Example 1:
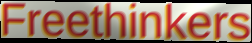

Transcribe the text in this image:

Freethinkers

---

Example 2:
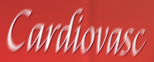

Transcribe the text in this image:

Cardiovasc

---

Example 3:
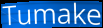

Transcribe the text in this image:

Tumake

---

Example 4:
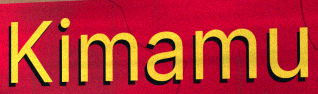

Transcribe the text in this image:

Kimamu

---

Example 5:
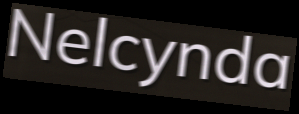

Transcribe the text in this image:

Nelcynda